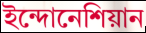
ইন্দোনেশিয়ান